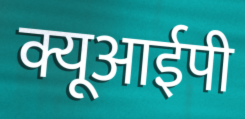
क्यूआईपी